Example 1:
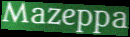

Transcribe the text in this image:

Mazeppa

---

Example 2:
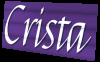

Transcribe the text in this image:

Crista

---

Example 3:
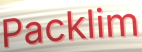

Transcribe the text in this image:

Packlim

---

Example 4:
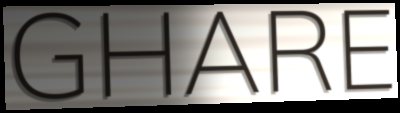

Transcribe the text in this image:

GHARE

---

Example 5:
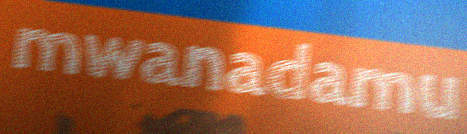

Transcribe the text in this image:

mwanadamu